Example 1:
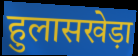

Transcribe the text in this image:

हुलासखेड़ा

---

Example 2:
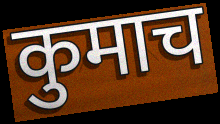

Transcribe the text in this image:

कुमाच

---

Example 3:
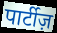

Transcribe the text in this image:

पार्टीज़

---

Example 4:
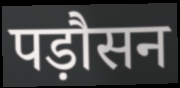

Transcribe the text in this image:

पड़ौसन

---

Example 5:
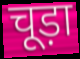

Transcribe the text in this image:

चूड़ा